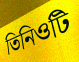
তিনিওটি